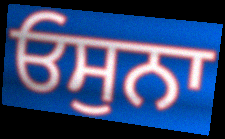
ਓਸੁਨਾ